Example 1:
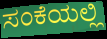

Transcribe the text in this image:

ಸಂಕೆಯಲ್ಲಿ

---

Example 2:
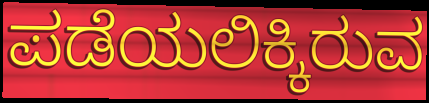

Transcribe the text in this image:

ಪಡೆಯಲಿಕ್ಕಿರುವ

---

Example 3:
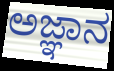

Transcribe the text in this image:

ಅಜ್ಞಾನ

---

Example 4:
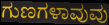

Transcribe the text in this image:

ಗುಣಗಳಾವುವು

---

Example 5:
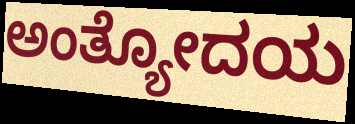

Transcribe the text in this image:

ಅಂತ್ಯೋದಯ